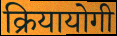
क्रियायोगी